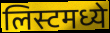
लिस्टमध्ये